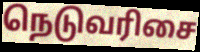
நெடுவரிசை